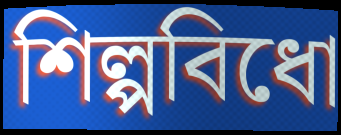
শিল্পবিধো